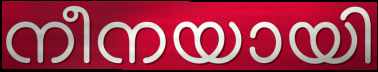
നീനയായി